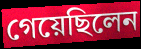
গেয়েছিলেন